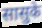
सासुके